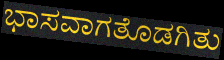
ಭಾಸವಾಗತೊಡಗಿತು